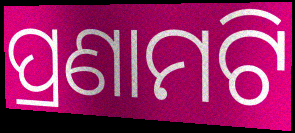
ପ୍ରଣାମଟି